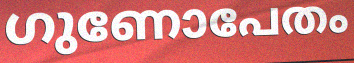
ഗുണോപേതം